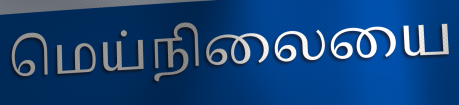
மெய்நிலையை